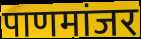
पाणमांजर